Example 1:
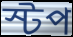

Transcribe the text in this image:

স্টপ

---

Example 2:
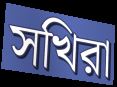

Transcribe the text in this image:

সখিরা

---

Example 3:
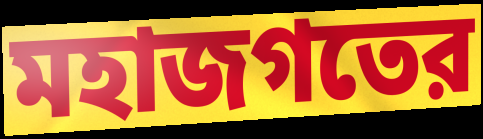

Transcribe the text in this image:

মহাজগতের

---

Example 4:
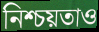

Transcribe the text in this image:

নিশ্চয়তাও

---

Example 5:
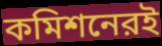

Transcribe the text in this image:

কমিশনেরই